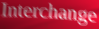
Interchange